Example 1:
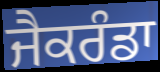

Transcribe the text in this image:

ਜੈਕਰੰਡਾ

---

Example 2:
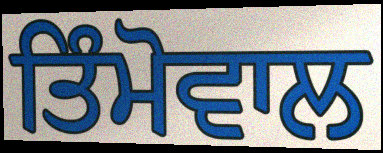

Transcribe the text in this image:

ਤਿੰਮੋਵਾਲ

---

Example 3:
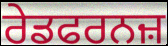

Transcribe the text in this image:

ਰੇਡਫਰਨਜ਼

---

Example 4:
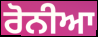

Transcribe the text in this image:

ਰੋਨੀਆ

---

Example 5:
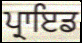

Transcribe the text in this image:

ਪ੍ਰਾਇਡ